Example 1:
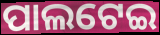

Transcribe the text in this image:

ପାଲଟେଇ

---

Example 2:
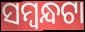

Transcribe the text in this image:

ସମ୍ବନ୍ଧଟା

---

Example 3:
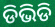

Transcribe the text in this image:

ଡିଭିଡି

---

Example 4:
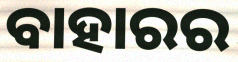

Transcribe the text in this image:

ବାହାରର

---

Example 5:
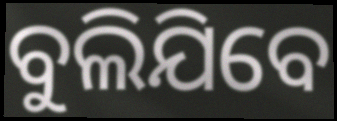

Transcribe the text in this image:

ବୁଲିଯିବେ